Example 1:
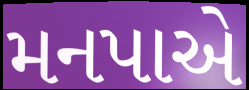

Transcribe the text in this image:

મનપાએ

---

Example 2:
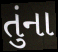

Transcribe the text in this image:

તુંના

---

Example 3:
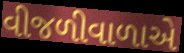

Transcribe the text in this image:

વીજળીવાળાએ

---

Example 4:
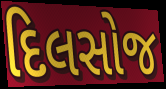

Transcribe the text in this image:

દિલસોજ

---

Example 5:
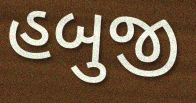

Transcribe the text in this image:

હબુજી